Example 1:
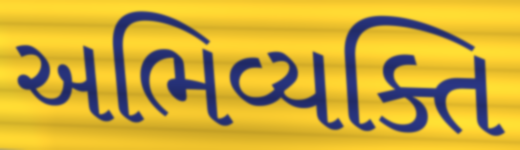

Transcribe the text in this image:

અભિવ્યક્તિ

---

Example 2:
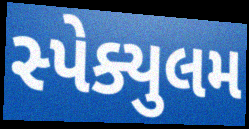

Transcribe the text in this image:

સ્પેક્યુલમ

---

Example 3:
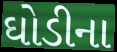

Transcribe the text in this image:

ઘોડીના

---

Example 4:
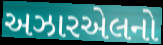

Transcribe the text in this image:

અઝારએલનો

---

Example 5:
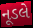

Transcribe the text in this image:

નૂડલે